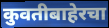
कुवतीबाहेरचा